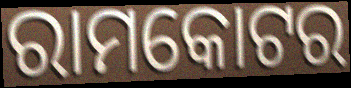
ରାମକୋଟର